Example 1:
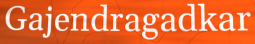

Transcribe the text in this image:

Gajendragadkar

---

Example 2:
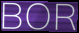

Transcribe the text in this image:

BOR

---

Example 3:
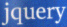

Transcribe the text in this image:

jquery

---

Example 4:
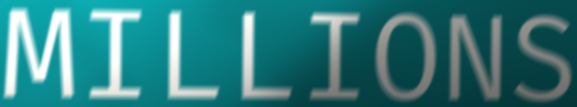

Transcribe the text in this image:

MILLIONS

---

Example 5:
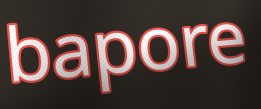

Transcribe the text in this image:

bapore